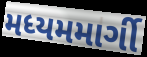
મધ્યમમાર્ગી